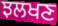
ਝਲਖਣ